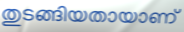
തുടങ്ങിയതായാണ്